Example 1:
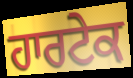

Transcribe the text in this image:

ਹਾਰਟੇਕ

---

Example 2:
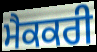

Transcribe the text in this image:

ਮੈਕਕਰੀ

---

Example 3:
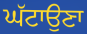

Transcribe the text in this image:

ਘੱਟਾਉਣਾ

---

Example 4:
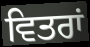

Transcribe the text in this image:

ਵਿਤਰਾਂ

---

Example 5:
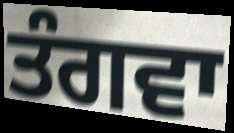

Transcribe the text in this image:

ਤੰਗਵਾ